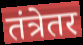
तंत्रेतर